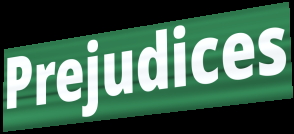
Prejudices